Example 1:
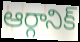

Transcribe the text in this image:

ఆర్గానిక్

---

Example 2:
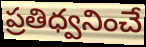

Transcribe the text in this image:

ప్రతిధ్వనించే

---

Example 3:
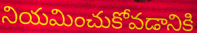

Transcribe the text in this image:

నియమించుకోవడానికి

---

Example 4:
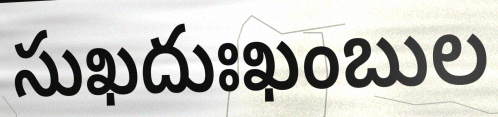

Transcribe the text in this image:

సుఖదుఃఖంబుల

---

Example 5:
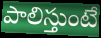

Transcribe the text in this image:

పాలిస్తుంటే